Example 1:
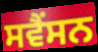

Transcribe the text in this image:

ਸਵੈਂਸਨ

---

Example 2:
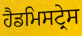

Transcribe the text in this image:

ਹੈਡਮਿਸਟ੍ਰੇਸ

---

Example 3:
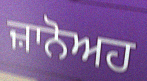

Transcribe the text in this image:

ਜ਼ਾਨੋਅਹ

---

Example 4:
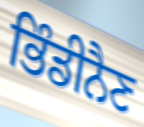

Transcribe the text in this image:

ਭਿੰਡੀਨੈਣ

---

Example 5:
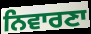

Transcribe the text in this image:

ਨਿਵਾਰਣਾ